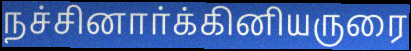
நச்சினார்க்கினியருரை